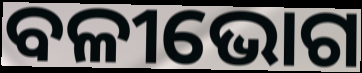
ବଳୀଭୋଗ